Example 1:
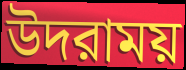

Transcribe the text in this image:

উদরাময়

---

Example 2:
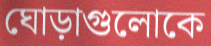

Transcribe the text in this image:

ঘোড়াগুলোকে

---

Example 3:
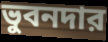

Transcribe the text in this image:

ভুবনদার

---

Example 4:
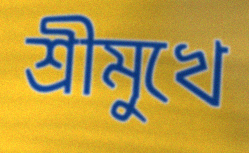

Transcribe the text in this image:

শ্রীমুখে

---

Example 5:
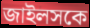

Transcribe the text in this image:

জাইলসকে